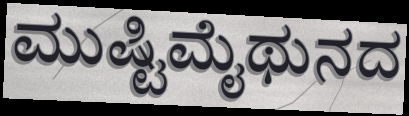
ಮುಷ್ಟಿಮೈಥುನದ